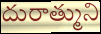
దురాత్ముని